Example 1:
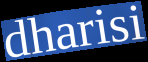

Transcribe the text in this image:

dharisi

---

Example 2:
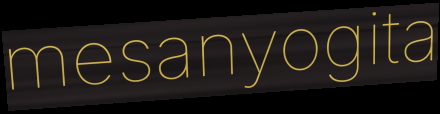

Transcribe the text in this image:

mesanyogita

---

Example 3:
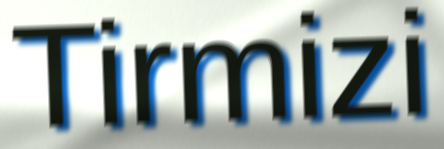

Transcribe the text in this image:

Tirmizi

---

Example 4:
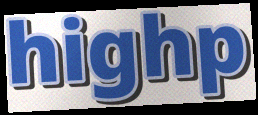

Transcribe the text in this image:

highp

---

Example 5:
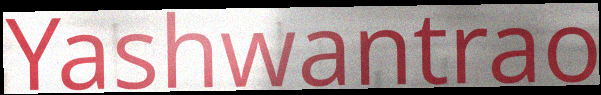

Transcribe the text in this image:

Yashwantrao